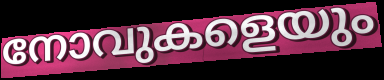
നോവുകളെയും